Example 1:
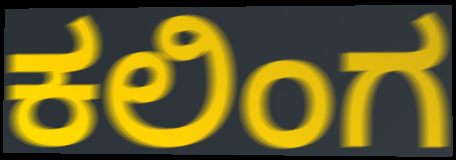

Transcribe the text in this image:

ಕಲಿಂಗ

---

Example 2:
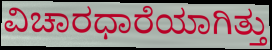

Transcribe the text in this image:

ವಿಚಾರಧಾರೆಯಾಗಿತ್ತು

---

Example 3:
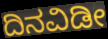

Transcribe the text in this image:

ದಿನವಿಡೀ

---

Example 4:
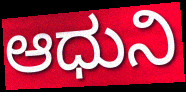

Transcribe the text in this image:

ಆಧುನಿ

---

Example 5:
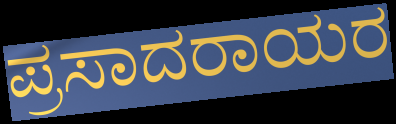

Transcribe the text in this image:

ಪ್ರಸಾದರಾಯರ